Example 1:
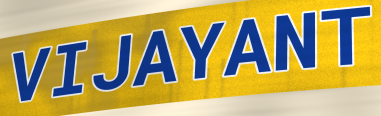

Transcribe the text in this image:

VIJAYANT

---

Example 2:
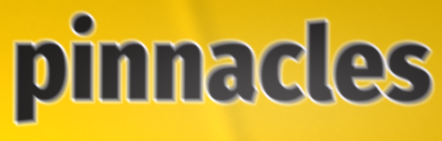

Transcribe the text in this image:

pinnacles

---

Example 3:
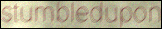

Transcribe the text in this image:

stumbledupon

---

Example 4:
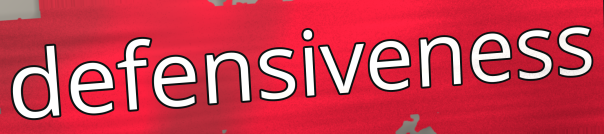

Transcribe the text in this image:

defensiveness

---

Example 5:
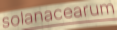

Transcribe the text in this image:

solanacearum